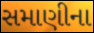
સમાણીના